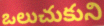
ఒలుచుకుని